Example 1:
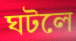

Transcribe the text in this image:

ঘটলে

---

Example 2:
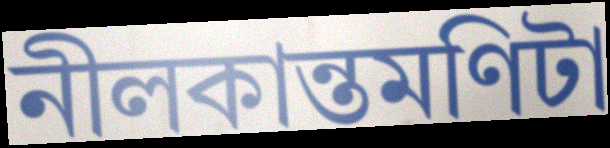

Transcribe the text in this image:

নীলকান্তমণিটা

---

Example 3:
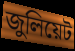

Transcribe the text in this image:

জুলিয়েট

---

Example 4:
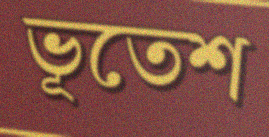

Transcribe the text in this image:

ভূতেশ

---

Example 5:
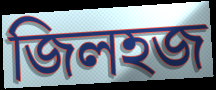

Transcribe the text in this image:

জিলহজ